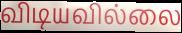
விடியவில்லை